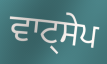
ਵਾਟ੍ਸੇਪ